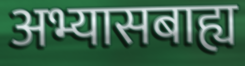
अभ्यासबाह्य